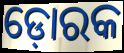
ଡ଼ୋରକ